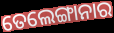
ତେଲେଙ୍ଗାନାର